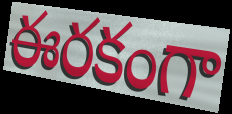
ఈరకంగా